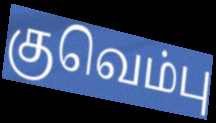
குவெம்பு